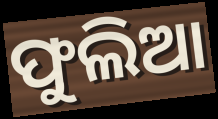
ଫୁଲିଆ